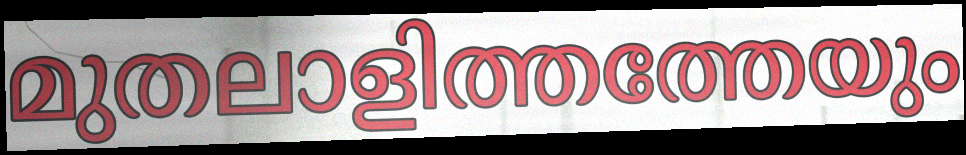
മുതലാളിത്തത്തേയും